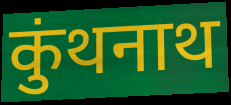
कुंथनाथ